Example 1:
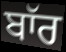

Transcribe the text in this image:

ਬਾੱਰ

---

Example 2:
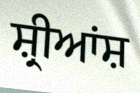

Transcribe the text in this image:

ਸ਼੍ਰੀਆਂਸ਼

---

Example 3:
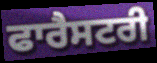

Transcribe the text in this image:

ਫਾਰੈਸਟਰੀ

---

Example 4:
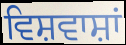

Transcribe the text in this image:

ਵਿਸ਼ਵਾਸ਼ਾਂ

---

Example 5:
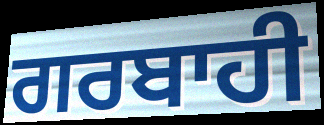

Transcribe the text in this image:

ਗਰਬਾਹੀ